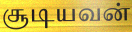
சூடியவன்